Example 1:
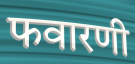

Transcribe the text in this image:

फवारणी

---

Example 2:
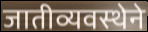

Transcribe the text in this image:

जातीव्यवस्थेने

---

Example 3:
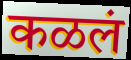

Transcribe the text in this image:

कळलं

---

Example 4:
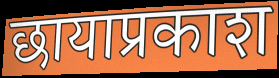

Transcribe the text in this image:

छायाप्रकाश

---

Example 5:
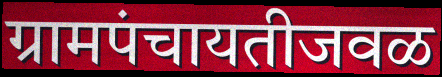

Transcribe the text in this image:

ग्रामपंचायतीजवळ